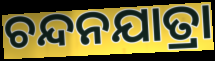
ଚନ୍ଦନଯାତ୍ରା